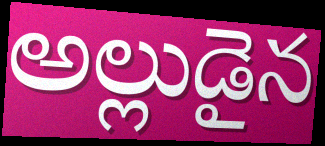
అల్లుడైన